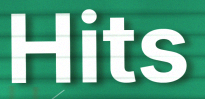
Hits